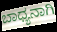
ಬಾಧ್ಯನಾಗಿ